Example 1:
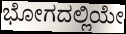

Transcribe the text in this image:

ಭೋಗದಲ್ಲಿಯೇ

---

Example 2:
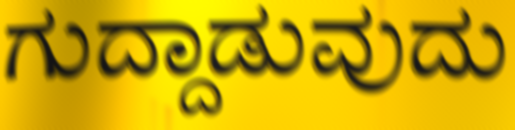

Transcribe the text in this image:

ಗುದ್ದಾಡುವುದು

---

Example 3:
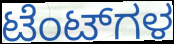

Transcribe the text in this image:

ಟೆಂಟ್‌ಗಳ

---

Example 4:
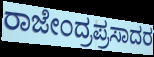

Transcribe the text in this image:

ರಾಜೇಂದ್ರಪ್ರಸಾದರ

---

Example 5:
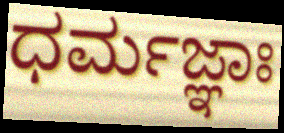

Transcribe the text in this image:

ಧರ್ಮಜ್ಞಾಃ